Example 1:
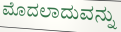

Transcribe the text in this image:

ಮೊದಲಾದುವನ್ನು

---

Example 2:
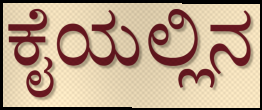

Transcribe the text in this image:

ಕೈಯಲ್ಲಿನ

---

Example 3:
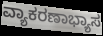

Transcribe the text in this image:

ವ್ಯಾಕರಣಾಭ್ಯಾಸ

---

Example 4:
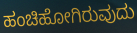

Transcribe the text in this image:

ಹಂಚಿಹೋಗಿರುವುದು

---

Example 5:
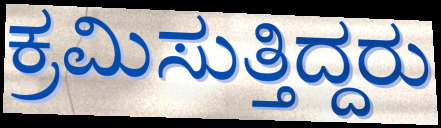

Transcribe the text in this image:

ಕ್ರಮಿಸುತ್ತಿದ್ದರು